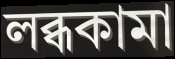
লব্ধকামা